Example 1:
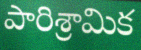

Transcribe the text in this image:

పారిశ్రామిక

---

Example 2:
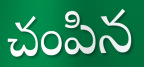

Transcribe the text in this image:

చంపిన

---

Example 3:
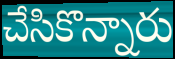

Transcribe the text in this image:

చేసికొన్నారు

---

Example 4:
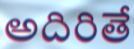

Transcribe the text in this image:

అదిరితే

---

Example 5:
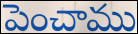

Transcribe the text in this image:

పెంచాము